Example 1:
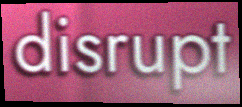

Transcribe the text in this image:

disrupt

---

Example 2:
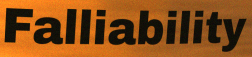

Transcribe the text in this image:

Falliability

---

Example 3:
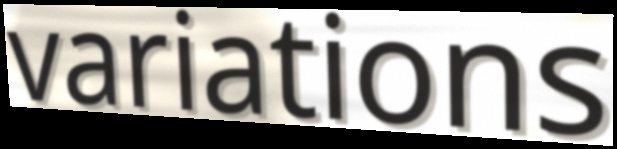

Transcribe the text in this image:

variations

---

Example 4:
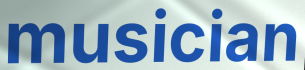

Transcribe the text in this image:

musician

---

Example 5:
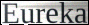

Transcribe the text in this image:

Eureka